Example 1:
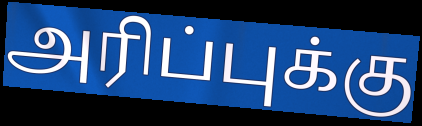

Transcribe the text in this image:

அரிப்புக்கு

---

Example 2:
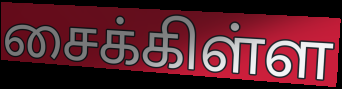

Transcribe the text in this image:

சைக்கிள்ள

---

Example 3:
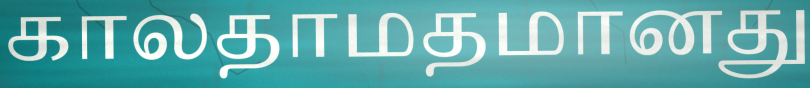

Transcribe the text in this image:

காலதாமதமானது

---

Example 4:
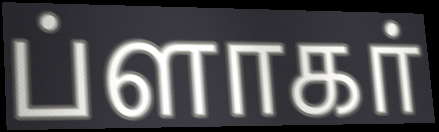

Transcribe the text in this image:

ப்ளாகர்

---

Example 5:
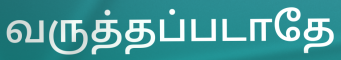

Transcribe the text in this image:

வருத்தப்படாதே